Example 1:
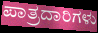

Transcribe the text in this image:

ಪಾತ್ರದಾರಿಗಳು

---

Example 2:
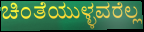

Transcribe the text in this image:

ಚಿಂತೆಯುಳ್ಳವರೆಲ್ಲ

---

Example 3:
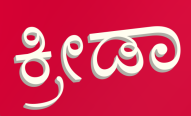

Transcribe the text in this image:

ಕ್ರೀಡಾ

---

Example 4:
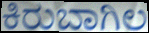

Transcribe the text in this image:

ಕಿರುಬಾಗಿಲ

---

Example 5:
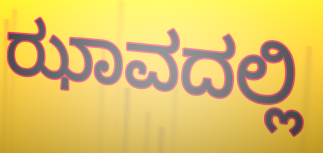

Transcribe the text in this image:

ಝಾವದಲ್ಲಿ